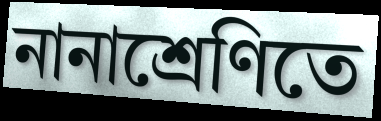
নানাশ্রেণিতে